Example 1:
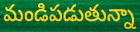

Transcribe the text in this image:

మండిపడుతున్నా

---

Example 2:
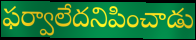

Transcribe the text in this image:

ఫర్వాలేదనిపించాడు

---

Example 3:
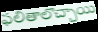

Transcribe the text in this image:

ఫలితాలొచ్చాయి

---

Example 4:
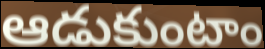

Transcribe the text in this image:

ఆడుకుంటాం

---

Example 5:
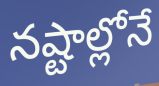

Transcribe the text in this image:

నష్టాల్లోనే